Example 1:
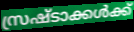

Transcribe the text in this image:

സ്രഷ്ടാക്കൾക്ക്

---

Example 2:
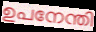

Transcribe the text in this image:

ഉപനേന്തി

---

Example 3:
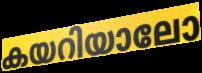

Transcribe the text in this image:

കയറിയാലോ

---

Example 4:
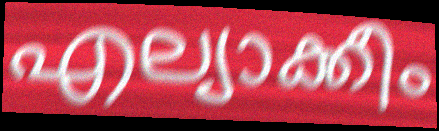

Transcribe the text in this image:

എല്യാക്കീം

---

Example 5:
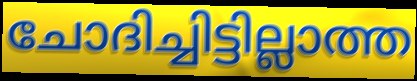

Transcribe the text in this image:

ചോദിച്ചിട്ടില്ലാത്ത